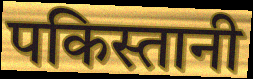
पकिस्तानी